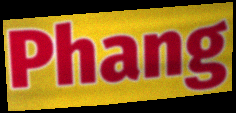
Phang